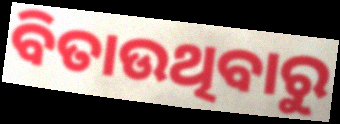
ବିତାଉଥିବାରୁ